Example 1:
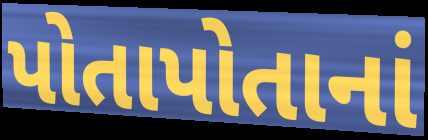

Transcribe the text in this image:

પોતાપોતાનાં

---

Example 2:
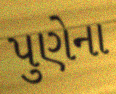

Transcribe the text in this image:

પુણેના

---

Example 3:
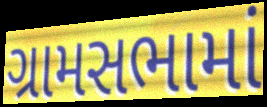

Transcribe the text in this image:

ગ્રામસભામાં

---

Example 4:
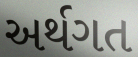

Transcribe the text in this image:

અર્થગત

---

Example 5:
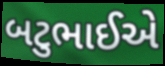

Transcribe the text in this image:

બટુભાઈએ